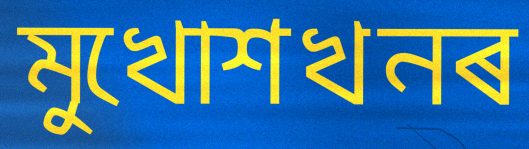
মুখোশখনৰ